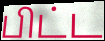
பிட்ட